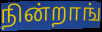
நின்றாங்